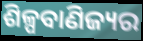
ଶିଳ୍ପବାଣିଜ୍ୟର